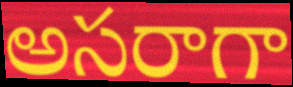
అసరాగా